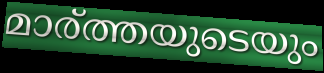
മാര്ത്തയുടെയും